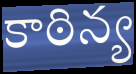
కాఠిన్య